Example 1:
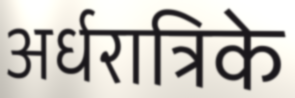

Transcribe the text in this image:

अर्धरात्रिके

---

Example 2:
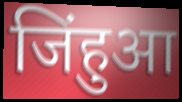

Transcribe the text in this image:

जिंहुआ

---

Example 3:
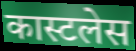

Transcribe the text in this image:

कास्टलेस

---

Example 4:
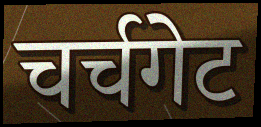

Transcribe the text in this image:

चर्चगेट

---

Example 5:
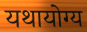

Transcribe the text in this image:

यथायोग्य